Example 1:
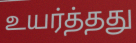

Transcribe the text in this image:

உயர்த்தது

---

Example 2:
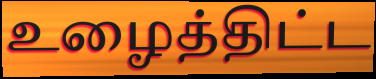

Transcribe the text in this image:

உழைத்திட்ட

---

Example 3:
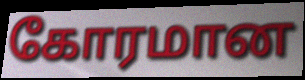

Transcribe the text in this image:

கோரமான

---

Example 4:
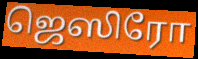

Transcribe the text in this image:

ஜெஸிரோ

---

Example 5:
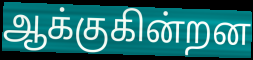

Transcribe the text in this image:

ஆக்குகின்றன